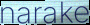
narake